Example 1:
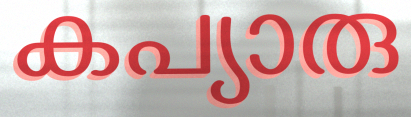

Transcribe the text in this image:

കപ്യാരു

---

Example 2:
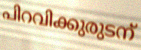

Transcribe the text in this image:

പിറവിക്കുരുടന്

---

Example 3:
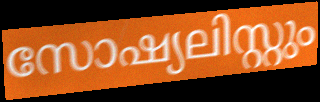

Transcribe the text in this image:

സോഷ്യലിസ്റ്റും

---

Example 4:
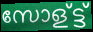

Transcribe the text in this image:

സോള്ട്ട്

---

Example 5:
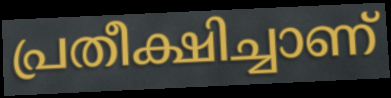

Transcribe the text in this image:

പ്രതീക്ഷിച്ചാണ്